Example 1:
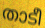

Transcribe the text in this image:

താടീ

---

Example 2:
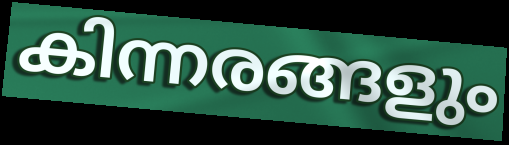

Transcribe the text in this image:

കിന്നരങ്ങളും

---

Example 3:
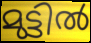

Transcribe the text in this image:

മുട്ടിൽ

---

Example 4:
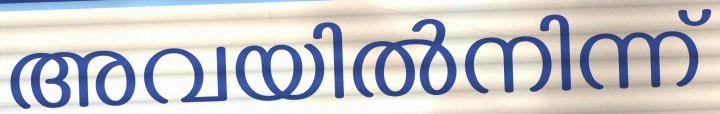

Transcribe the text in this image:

അവയിൽനിന്ന്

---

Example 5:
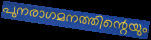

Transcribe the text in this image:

പുനരാഗമനത്തിന്റെയും